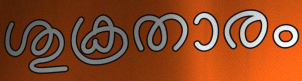
ശുക്രതാരം